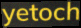
yetoch